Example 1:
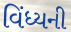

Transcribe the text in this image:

વિંધ્યની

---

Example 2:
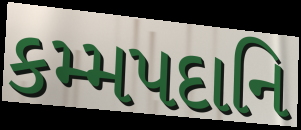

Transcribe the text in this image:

કમ્મપદાનિ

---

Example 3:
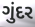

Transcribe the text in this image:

ગુંદર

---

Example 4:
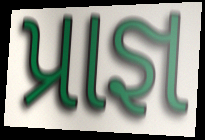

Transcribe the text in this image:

પ્રાજ્ઞ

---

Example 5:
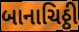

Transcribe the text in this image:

બાનાચિઠ્ઠી